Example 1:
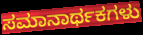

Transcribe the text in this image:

ಸಮಾನಾರ್ಥಕಗಳು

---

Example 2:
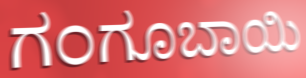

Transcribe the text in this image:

ಗಂಗೂಬಾಯಿ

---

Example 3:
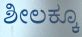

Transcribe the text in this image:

ಶೀಲಕ್ಕೂ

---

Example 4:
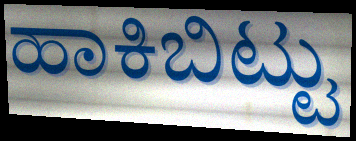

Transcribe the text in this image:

ಹಾಕಿಬಿಟ್ಟು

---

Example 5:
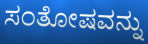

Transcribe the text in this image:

ಸಂತೋಷವನ್ನು